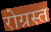
रोग्रस्त